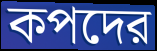
কপদের